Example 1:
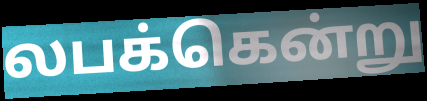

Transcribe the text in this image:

லபக்கென்று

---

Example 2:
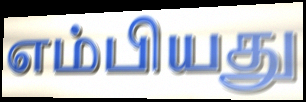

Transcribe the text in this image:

எம்பியது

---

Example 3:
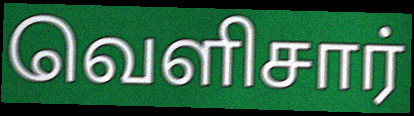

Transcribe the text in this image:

வெளிசார்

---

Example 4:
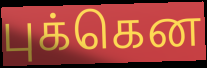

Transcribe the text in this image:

புக்கென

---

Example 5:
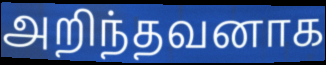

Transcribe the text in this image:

அறிந்தவனாக